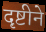
दृष्टीने